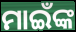
ମାଇଁଙ୍କ